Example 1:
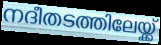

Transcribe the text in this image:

നദീതടത്തിലേയ്ക്ക്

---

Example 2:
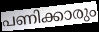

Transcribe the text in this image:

പണിക്കാരും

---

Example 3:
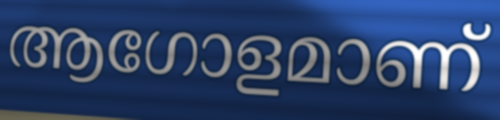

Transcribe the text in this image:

ആഗോളമാണ്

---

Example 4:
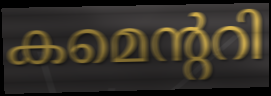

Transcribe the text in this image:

കമെന്ററി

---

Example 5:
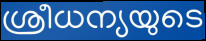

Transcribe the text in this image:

ശ്രീധന്യയുടെ